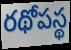
రథోపస్థ